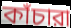
কাঁচারা